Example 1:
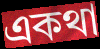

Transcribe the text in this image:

একথা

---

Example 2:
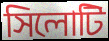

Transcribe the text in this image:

সিলোটি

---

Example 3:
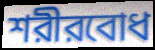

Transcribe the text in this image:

শরীরবোধ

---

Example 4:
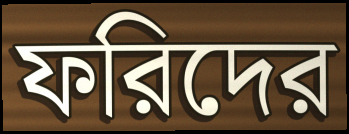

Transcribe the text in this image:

ফরিদের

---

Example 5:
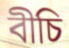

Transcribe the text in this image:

বীচি